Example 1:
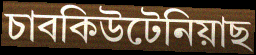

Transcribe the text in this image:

চাবকিউটেনিয়াছ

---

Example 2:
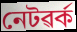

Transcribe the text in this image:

নেটৱৰ্ক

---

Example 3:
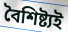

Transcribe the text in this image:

বৈশিষ্ট্যই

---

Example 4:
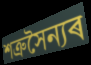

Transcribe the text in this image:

শত্ৰুসৈন্যৰ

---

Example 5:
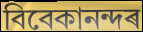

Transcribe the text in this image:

বিবেকানন্দৰ